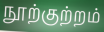
நூற்குற்றம்